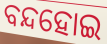
ବନ୍ଦହୋଇ